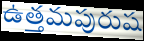
ఉత్తమపురుష